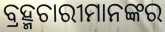
ବ୍ରହ୍ମଚାରୀମାନଙ୍କର